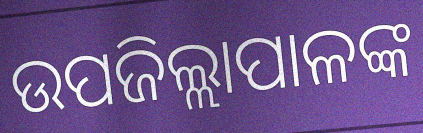
ଉପଜିଲ୍ଲାପାଳଙ୍କ